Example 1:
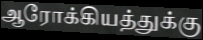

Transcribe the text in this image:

ஆரோக்கியத்துக்கு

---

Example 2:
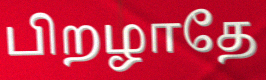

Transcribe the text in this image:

பிறழாதே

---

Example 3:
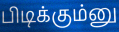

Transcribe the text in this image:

பிடிக்கும்னு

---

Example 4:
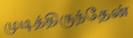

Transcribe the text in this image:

முடித்திருந்தேன்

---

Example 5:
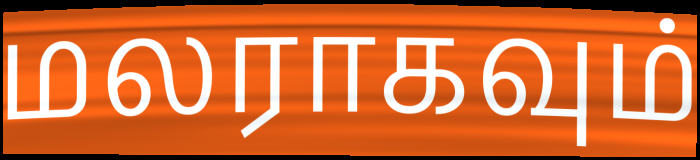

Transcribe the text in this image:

மலராகவும்